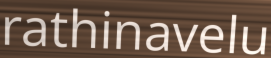
rathinavelu